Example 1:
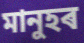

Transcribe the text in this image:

মানুহৰ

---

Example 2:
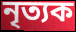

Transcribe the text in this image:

নৃত্যক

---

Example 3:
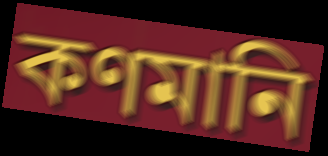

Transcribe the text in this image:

কণমানি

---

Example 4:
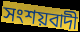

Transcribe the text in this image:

সংশয়বাদী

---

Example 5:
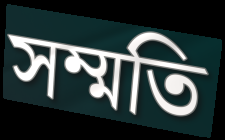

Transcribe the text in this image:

সম্মতি